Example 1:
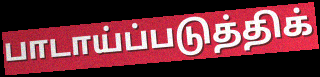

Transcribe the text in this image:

பாடாய்ப்படுத்திக்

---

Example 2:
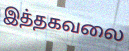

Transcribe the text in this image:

இத்தகவலை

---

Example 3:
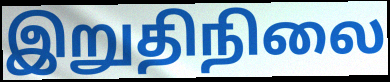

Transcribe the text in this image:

இறுதிநிலை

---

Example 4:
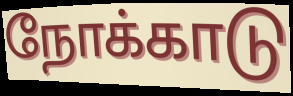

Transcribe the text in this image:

நோக்காடு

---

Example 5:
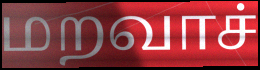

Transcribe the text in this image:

மறவாச்